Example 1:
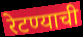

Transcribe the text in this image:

रेटण्याची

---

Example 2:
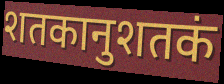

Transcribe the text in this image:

शतकानुशतकं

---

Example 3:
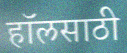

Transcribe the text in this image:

हॉलसाठी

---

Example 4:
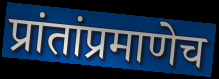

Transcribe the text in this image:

प्रांतांप्रमाणेच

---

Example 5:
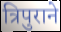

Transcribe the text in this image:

त्रिपुराने